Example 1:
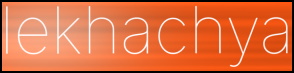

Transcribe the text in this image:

lekhachya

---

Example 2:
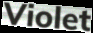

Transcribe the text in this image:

Violet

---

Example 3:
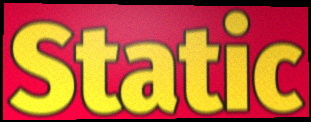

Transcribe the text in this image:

Static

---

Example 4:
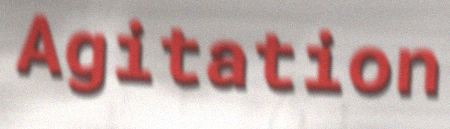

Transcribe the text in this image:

Agitation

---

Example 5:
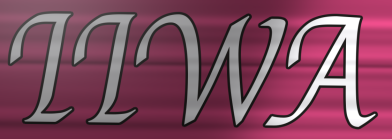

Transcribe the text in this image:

IIWA